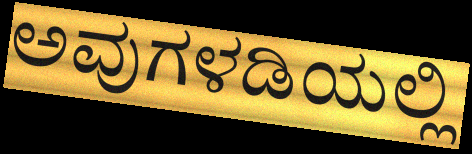
ಅವುಗಳಡಿಯಲ್ಲಿ